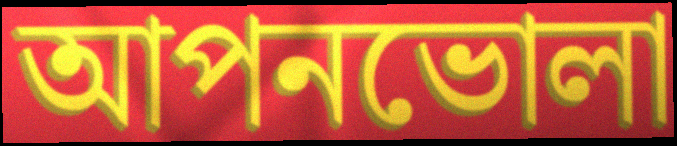
আপনভোলা